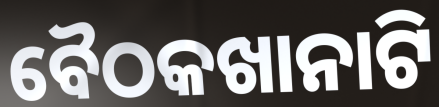
ବୈଠକଖାନାଟି